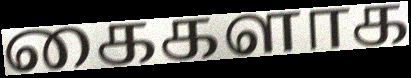
கைகளாக